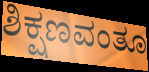
ಶಿಕ್ಷಣವಂತೂ